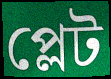
প্লেট